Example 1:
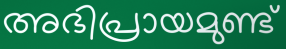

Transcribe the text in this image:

അഭിപ്രായമുണ്ട്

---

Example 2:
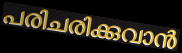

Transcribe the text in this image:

പരിചരിക്കുവാൻ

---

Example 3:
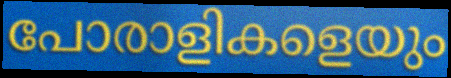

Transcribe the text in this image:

പോരാളികളെയും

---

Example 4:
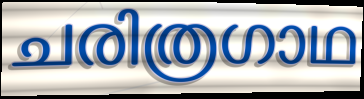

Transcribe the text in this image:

ചരിത്രഗാഥ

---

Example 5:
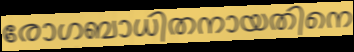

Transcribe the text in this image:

രോഗബാധിതനായതിനെ